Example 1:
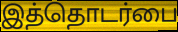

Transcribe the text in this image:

இத்தொடர்பை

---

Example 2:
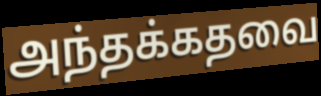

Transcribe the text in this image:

அந்தக்கதவை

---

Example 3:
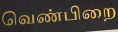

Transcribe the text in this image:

வெண்பிறை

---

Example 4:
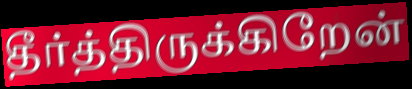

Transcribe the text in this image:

தீர்த்திருக்கிறேன்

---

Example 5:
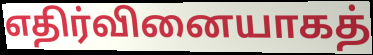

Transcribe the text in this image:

எதிர்வினையாகத்